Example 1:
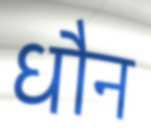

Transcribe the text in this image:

धौन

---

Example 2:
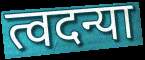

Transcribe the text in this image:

त्वदन्या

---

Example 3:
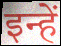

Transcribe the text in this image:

इन्‍हें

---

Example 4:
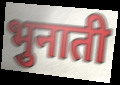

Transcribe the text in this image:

भुनाती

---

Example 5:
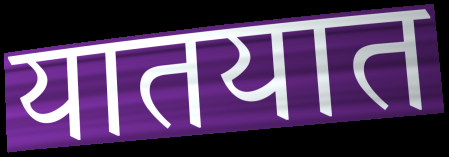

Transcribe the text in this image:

यातयात